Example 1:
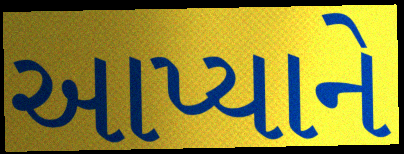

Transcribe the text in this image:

આપ્યાને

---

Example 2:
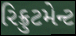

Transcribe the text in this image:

રિક્રુટમેન્ટ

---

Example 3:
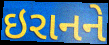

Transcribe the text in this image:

ઇરાનને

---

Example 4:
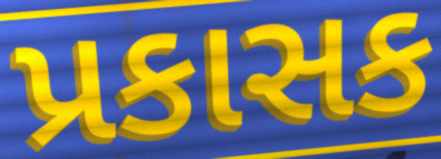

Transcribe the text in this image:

પ્રકાસક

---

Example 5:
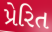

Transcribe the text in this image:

પ્રેરિત